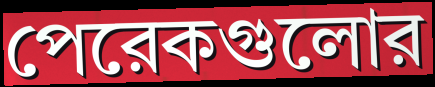
পেরেকগুলোর